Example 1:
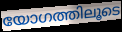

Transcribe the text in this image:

യോഗത്തിലൂടെ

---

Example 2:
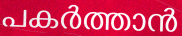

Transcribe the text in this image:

പകർത്താൻ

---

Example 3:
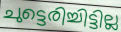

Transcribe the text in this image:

ചുട്ടെരിച്ചിട്ടില്ല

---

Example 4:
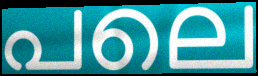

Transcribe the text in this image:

പലെ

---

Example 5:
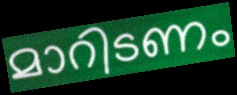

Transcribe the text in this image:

മാറിടണം